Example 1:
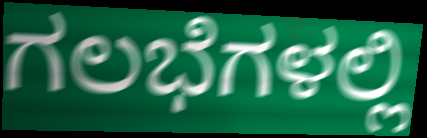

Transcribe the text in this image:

ಗಲಭೆಗಳಲ್ಲಿ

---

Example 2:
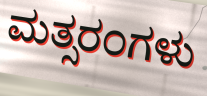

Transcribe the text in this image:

ಮತ್ಸರಂಗಳು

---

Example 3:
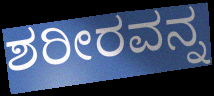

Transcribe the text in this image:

ಶರೀರವನ್ನ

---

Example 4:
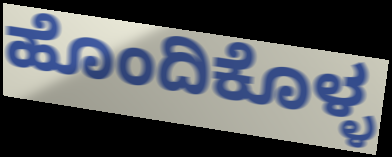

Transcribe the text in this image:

ಹೊಂದಿಕೊಳ್ಳ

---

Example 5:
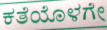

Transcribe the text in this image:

ಕತೆಯೊಳಗೇ